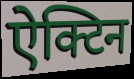
ऐक्टिन